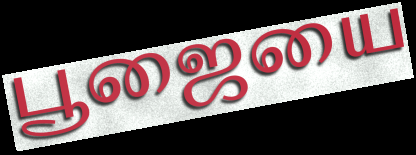
பூஜையை